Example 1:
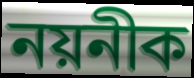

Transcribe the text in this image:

নয়নীক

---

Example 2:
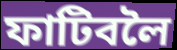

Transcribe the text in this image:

ফাটিবলৈ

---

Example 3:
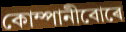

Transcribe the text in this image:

কোম্পানীবোৰে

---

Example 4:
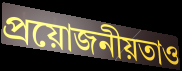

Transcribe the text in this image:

প্ৰয়োজনীয়তাও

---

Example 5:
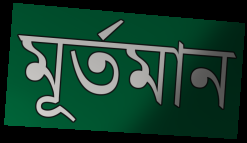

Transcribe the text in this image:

মূৰ্তমান